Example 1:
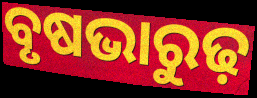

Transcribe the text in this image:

ବୃଷଭାରୁଢ଼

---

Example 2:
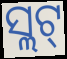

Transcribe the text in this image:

ସ୍ଲଟ୍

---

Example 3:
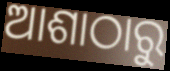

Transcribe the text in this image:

ଆଶାଠାରୁ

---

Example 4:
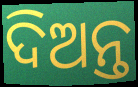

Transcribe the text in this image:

ଦିଅନ୍ତ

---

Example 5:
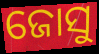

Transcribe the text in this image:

ଜୋସୁ